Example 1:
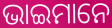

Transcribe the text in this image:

ଭାଇମାନେ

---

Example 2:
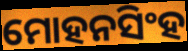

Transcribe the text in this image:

ମୋହନସିଂହ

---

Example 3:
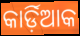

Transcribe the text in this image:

କାର୍ଡ଼ିଆକ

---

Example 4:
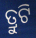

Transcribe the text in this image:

ତ୍ରୁଟି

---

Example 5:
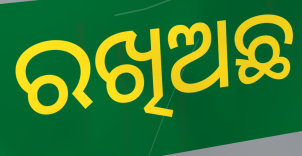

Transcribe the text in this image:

ରଖିଅଛ